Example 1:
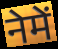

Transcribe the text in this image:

नेमें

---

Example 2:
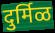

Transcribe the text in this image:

दुर्मिळ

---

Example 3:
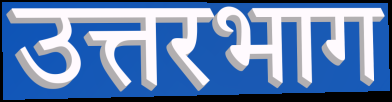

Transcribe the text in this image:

उत्तरभाग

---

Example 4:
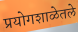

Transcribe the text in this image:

प्रयोगशाळेतले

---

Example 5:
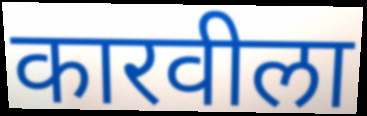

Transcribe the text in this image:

कारवीला